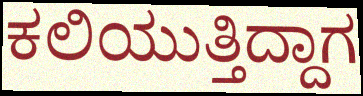
ಕಲಿಯುತ್ತಿದ್ದಾಗ